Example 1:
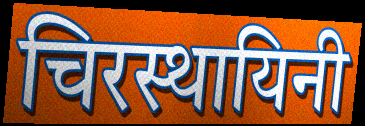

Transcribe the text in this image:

चिरस्थायिनी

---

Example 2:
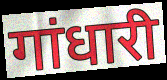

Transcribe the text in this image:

गांधारी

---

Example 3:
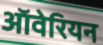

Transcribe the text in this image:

ऑवेरियन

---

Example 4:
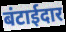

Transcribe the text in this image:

बंटाईदार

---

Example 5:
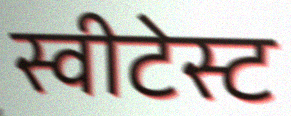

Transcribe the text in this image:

स्वीटेस्ट